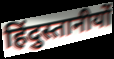
हिंदुस्तानीयों